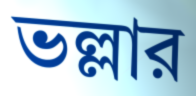
ভল্লার